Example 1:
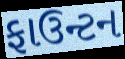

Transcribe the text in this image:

ફાઉન્ટન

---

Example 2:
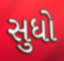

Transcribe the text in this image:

સુધો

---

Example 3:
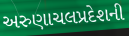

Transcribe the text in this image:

અરુણાચલપ્રદેશની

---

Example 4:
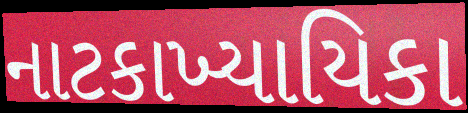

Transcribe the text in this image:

નાટકાખ્યાયિકા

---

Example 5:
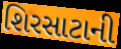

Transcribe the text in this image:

શિરસાટાની